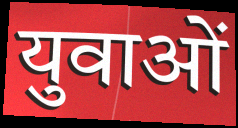
युवाओं